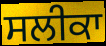
ਸਲੀਕਾ